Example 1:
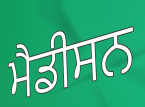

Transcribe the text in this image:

ਮੈਡੀਸਨ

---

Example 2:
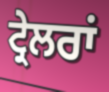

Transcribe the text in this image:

ਟ੍ਰੇਲਰਾਂ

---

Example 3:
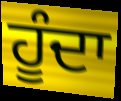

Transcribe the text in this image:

ਹੂੰਦਾ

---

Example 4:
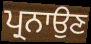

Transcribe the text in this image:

ਪ੍ਰਨਾਉਣ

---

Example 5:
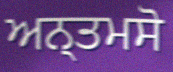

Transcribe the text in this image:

ਅਨ੍ਤਮਸੋ